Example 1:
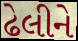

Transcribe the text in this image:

ઢેલીને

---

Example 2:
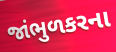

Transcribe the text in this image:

જાંભુળકરના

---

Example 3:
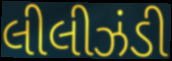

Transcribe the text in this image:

લીલીઝંડી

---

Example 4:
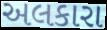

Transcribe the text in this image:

અલકારા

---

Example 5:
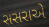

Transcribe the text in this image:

સસરાએ